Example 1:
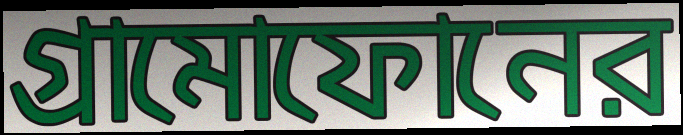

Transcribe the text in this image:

গ্রামোফোনের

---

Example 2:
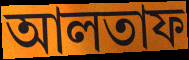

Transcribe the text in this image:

আলতাফ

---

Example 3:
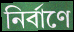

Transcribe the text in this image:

নির্বাণে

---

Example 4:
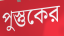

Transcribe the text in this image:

পুস্তুকের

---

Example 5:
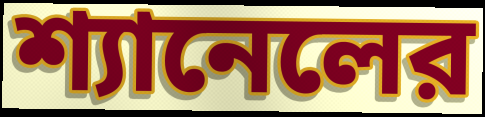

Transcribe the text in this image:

শ্যানেলের